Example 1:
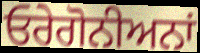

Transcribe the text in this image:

ਓਰੇਗੋਨੀਅਨਾਂ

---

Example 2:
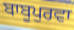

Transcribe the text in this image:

ਬਾਬੂਪੁਰਵਾ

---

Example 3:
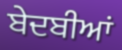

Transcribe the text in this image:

ਬੇਦਬੀਆਂ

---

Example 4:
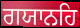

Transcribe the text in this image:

ਗਯਾਨਹਿ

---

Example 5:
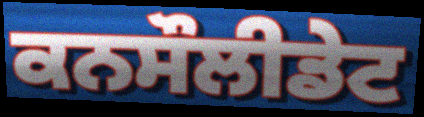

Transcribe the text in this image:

ਕਨਸੌਲੀਡੇਟ